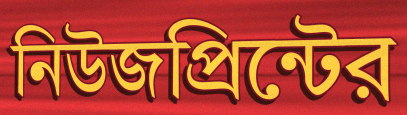
নিউজপ্রিন্টের